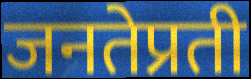
जनतेप्रती